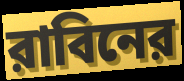
রাবিনের